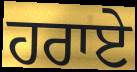
ਹਰਾਏ